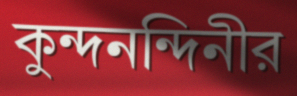
কুন্দনন্দিনীর